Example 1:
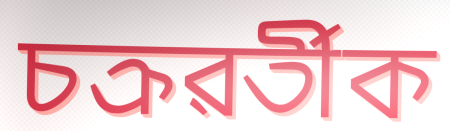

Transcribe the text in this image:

চক্ৰৱৰ্তীক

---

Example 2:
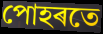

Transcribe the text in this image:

পোহৰতে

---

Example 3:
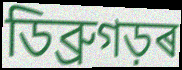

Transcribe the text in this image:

ডিব্ৰুগড়ৰ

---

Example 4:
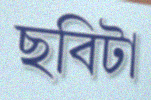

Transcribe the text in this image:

ছবিটা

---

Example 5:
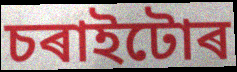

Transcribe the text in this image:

চৰাইটোৰ